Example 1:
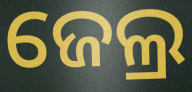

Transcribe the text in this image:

ଜେଲ୍ର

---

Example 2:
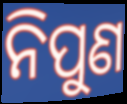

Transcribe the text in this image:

ନିପୁଣ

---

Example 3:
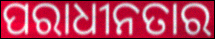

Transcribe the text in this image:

ପରାଧୀନତାର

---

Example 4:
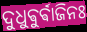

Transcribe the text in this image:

ଦୁଧୁଵୁର୍ଵାଜିନଃ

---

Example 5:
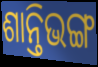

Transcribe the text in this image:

ଶାନ୍ତିଭଙ୍ଗ